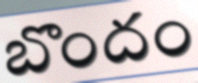
బొందం